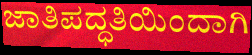
ಜಾತಿಪದ್ಧತಿಯಿಂದಾಗಿ